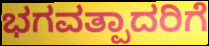
ಭಗವತ್ಪಾದರಿಗೆ